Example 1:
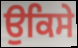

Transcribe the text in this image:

ਉਕਿਸੇ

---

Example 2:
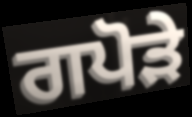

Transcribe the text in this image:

ਗਪੋੜੇ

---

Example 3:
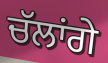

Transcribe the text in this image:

ਚੱਲਾਂਗੇ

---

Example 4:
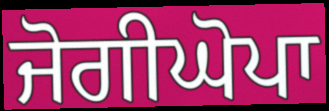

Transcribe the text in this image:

ਜੋਗੀਘੋਪਾ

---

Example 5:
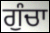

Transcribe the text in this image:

ਗੁੰਚਾ